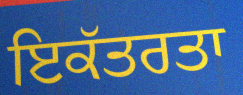
ਇਕੱਤਰਤਾ